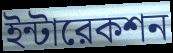
ইন্টারেকশন